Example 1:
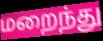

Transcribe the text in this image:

மறைந்து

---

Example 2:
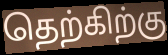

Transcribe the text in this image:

தெற்கிற்கு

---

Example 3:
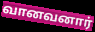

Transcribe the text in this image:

வானவனார்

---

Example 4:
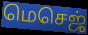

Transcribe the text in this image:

மெசெஜ்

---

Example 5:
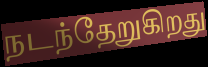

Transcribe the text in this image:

நடந்தேறுகிறது